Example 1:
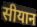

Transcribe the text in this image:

सीयान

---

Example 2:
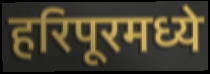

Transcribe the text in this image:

हरिपूरमध्ये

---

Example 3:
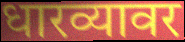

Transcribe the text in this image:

धारव्यावर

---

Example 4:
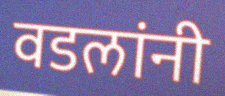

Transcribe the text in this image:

वडलांनी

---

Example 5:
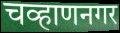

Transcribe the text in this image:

चव्हाणनगर